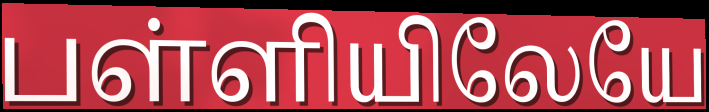
பள்ளியிலேயே